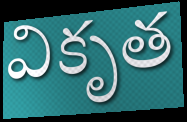
వికృత